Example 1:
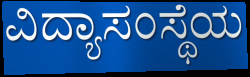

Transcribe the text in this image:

ವಿದ್ಯಾಸಂಸ್ಥೆಯ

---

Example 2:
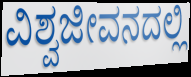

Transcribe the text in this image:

ವಿಶ್ವಜೀವನದಲ್ಲಿ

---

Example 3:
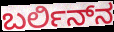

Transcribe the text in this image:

ಬರ್ಲಿನ್‍ನ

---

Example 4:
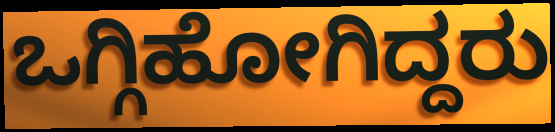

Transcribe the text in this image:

ಒಗ್ಗಿಹೋಗಿದ್ದರು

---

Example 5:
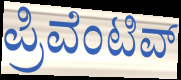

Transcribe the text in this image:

ಪ್ರಿವೆಂಟಿವ್